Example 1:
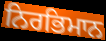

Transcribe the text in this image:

ਨਿਰਭਿਮਾਨ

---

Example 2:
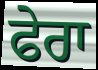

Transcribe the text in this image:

ਫੇਰਾ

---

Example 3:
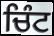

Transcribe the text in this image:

ਚਿੰਟ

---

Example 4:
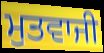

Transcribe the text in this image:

ਮੁਤਵਾਜੀ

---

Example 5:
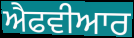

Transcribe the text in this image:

ਐਫਵੀਆਰ